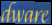
dware